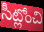
సీట్లోంచి